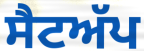
ਸੈਟਅੱਪ